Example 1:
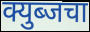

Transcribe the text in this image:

क्युब्जचा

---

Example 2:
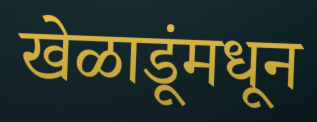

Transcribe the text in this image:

खेळाडूंमधून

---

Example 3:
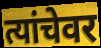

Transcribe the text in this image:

त्यांचेवर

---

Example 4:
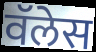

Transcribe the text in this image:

वॅलेस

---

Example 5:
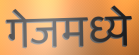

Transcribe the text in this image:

गेजमध्ये